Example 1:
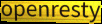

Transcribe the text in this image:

openresty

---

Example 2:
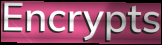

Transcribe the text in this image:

Encrypts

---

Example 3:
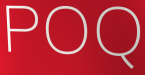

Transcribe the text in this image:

POQ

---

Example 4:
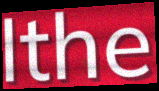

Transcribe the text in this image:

Ithe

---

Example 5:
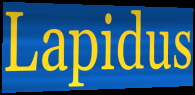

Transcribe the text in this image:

Lapidus